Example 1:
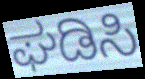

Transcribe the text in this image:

ಘಡಿಸಿ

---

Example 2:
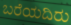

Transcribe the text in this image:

ಬರೆಯದಿರು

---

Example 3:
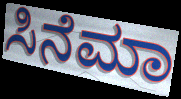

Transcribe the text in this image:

ಸಿನೆಮಾ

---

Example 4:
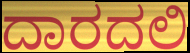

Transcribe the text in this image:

ದಾರದಲಿ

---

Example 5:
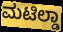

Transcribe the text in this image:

ಮಟಿಲ್ಡಾ